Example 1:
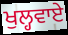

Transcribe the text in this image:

ਖੁਲ੍ਹਵਾਏ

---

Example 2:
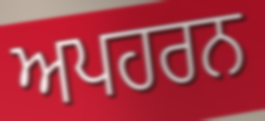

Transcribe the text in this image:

ਅਪਹਰਨ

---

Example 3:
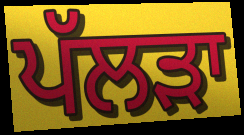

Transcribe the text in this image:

ਪੱਲੜਾ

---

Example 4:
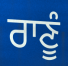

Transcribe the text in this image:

ਰਾਣੂੰ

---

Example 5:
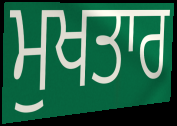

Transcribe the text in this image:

ਮੁਖਤਾਰ